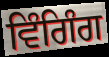
ਵਿੰਗਿੰਗ